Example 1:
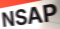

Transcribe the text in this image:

NSAP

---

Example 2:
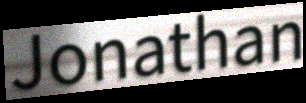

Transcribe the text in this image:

Jonathan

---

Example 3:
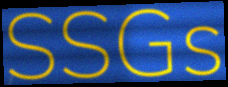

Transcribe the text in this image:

SSGs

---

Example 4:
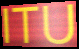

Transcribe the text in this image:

ITU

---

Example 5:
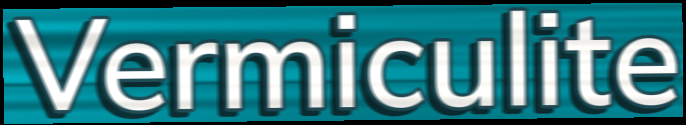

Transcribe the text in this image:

Vermiculite